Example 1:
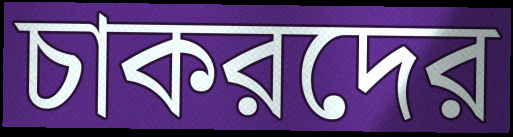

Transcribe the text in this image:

চাকরদের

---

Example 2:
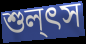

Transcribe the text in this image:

শুল্ৎস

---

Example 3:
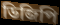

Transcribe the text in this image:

ডিজিপি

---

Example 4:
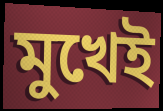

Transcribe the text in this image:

মুখেই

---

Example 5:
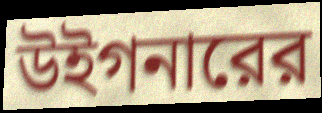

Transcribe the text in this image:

উইগনারের